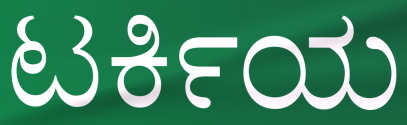
ಟರ್ಕಿಯ